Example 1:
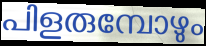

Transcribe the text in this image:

പിളരുമ്പോഴും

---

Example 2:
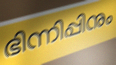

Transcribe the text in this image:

ഭിന്നിപ്പിനും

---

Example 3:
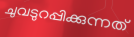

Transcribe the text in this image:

ചുവടുറപ്പിക്കുന്നത്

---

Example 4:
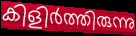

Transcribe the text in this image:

കിളിർത്തിരുന്നു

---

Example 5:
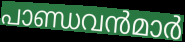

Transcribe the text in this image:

പാണ്ഡവൻമാർ